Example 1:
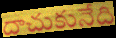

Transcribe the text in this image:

దాచుకునేది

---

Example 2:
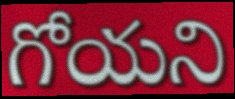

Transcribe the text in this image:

గోయని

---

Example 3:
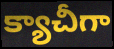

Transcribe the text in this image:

క్యాచీగా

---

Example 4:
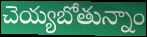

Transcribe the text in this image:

చెయ్యబోతున్నాం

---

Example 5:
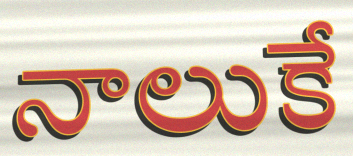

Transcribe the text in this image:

నాలుకే